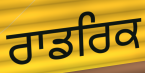
ਰਾਡਰਿਕ